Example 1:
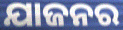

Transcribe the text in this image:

ଯାଜନର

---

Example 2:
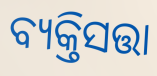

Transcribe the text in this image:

ବ୍ୟକ୍ତିସତ୍ତା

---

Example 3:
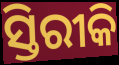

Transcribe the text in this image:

ସ୍ତିରୀକି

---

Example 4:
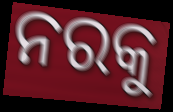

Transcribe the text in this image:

ନରକୁ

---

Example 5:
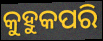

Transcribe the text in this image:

କୁହୁକପରି